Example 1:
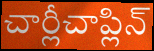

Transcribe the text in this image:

చార్లీచాప్లిన్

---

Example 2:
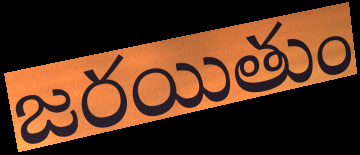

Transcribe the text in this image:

జరయితుం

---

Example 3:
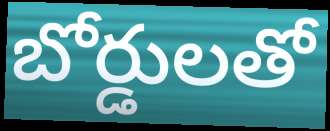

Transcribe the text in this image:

బోర్డులతో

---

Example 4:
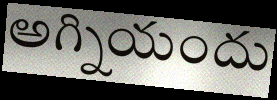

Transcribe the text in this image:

అగ్నియందు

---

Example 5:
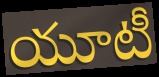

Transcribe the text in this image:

యూటీ